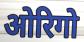
ओरिगो